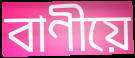
বাণীয়ে